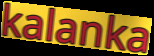
kalanka